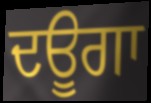
ਦਊਗਾ